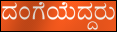
ದಂಗೆಯೆದ್ದರು